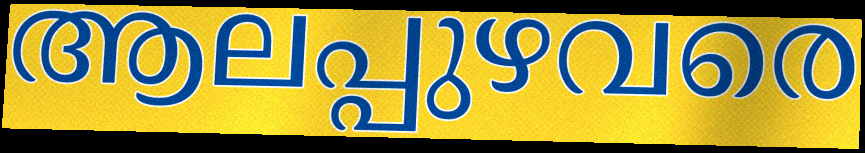
ആലപ്പുഴവരെ